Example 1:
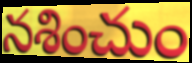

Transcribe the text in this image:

నశించుం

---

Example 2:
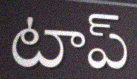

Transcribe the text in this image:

టాప్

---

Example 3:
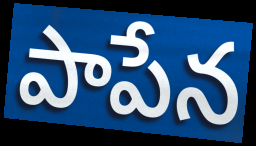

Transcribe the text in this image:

పాపేన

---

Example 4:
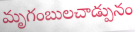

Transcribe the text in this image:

మృగంబులచాడ్పునం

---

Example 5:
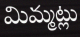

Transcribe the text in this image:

మిమ్మట్లు